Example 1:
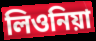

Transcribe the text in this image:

লিওনিয়া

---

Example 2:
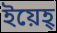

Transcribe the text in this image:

ইয়েহ্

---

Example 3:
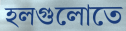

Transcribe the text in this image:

হলগুলোতে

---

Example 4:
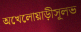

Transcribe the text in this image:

অখেলোয়াড়ীসূলভ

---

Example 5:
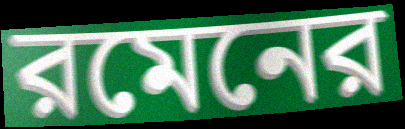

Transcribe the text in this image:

রমেনের